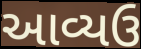
આવ્યઉ